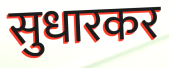
सुधारकर